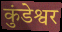
कुंडेश्वर